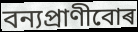
বন্যপ্ৰাণীবোৰ